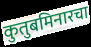
कुतुबमिनारचा